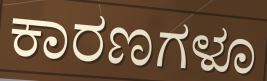
ಕಾರಣಗಳೂ